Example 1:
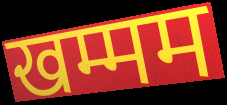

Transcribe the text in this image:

खम्मम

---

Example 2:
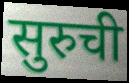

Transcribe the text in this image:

सुरुची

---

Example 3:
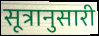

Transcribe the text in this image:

सूत्रानुसारी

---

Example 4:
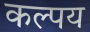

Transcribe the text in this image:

कल्पय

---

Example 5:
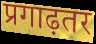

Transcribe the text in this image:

प्रगाढ़तर